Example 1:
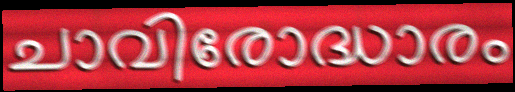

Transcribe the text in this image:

ചാവിരോദ്ധാരം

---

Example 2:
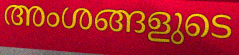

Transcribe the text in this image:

അംശങ്ങളുടെ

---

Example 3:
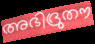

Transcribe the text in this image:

അഭിദ്രുതൗ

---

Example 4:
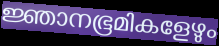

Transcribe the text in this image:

ജ്ഞാനഭൂമികളേഴും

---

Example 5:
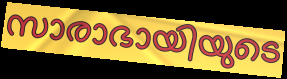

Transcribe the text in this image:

സാരാഭായിയുടെ